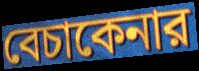
বেচাকেনার